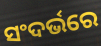
ସଂଦର୍ଭରେ